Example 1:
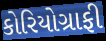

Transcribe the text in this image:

કોરિયોગ્રાફી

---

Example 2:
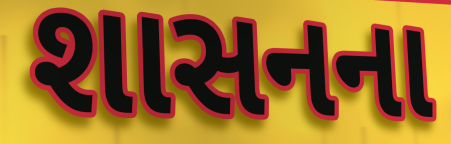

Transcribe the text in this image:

શાસનના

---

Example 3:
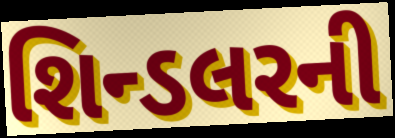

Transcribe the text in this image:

શિન્ડલરની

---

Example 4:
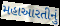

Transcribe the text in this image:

મહાઆરતીનું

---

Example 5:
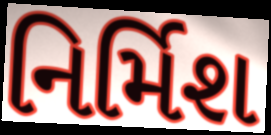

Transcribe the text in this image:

નિર્મિશ